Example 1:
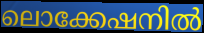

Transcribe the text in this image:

ലൊക്കേഷനിൽ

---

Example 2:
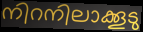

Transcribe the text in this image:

നിറനിലാക്കൂടു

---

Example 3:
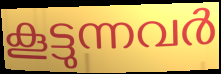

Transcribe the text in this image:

കൂട്ടുന്നവർ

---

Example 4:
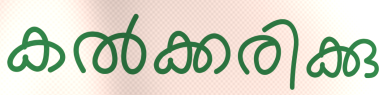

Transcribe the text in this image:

കൽക്കരിക്കു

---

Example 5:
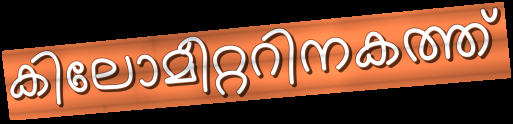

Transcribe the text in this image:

കിലോമീറ്ററിനകത്ത്